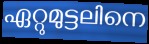
ഏറ്റുമുട്ടലിനെ